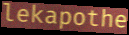
lekapothe